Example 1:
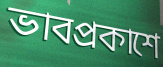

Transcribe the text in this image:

ভাবপ্রকাশে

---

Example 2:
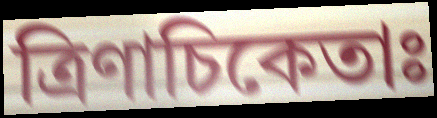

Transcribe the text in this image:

ত্রিণাচিকেতাঃ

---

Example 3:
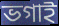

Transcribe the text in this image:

ভগাই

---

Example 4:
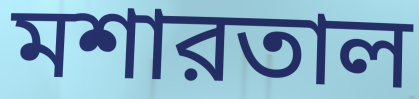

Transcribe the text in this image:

মশারতাল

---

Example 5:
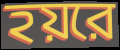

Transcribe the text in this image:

হয়রে